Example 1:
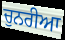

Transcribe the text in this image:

ਚੁਨਰੀਆ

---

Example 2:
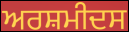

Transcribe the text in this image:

ਅਰਸ਼ਮੀਦਸ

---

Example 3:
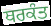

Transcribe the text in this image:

ਥਰਕੰਤ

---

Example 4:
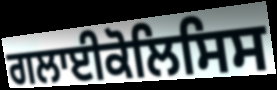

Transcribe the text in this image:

ਗਲਾਈਕੋਲਿਸਿਸ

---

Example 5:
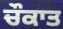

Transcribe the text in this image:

ਚੌਕਾਤ